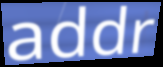
addr